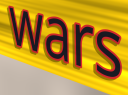
wars